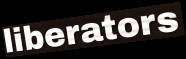
liberators